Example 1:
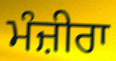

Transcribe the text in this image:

ਮੰਜ਼ੀਰਾ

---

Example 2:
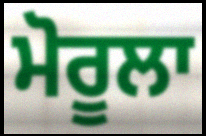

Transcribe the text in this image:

ਮੋਰੂਲਾ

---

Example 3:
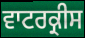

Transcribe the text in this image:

ਵਾਟਰਕ੍ਰੀਸ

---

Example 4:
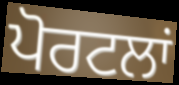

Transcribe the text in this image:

ਪੋਰਟਲਾਂ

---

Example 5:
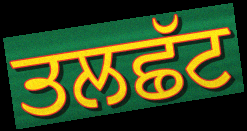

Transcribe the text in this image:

ਤਲਛੱਟ